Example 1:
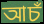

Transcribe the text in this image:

আচঁ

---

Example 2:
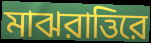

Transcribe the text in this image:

মাঝরাত্তিরে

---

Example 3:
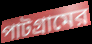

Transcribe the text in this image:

পাটগ্রামের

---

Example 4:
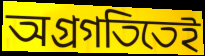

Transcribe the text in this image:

অগ্রগতিতেই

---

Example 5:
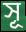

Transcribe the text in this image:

সূ